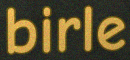
birle